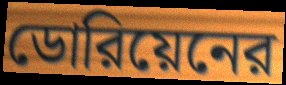
ডোরিয়েনের